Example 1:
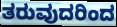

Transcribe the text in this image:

ತರುವುದರಿಂದ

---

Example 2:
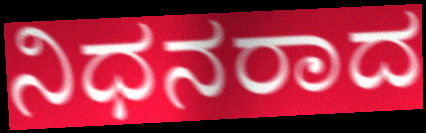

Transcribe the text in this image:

ನಿಧನರಾದ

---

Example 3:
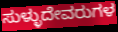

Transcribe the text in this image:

ಸುಳ್ಳುದೇವರುಗಳ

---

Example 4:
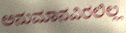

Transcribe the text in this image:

ಅನುಮಾನವಿರಲಿಲ್ಲ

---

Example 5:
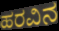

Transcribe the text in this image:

ಹರವಿನ